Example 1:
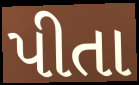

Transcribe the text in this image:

પીતા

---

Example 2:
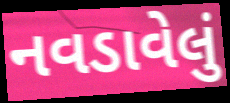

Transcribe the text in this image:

નવડાવેલું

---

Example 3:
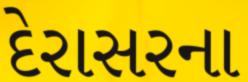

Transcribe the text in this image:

દેરાસરના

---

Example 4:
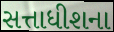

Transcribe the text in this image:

સત્તાધીશના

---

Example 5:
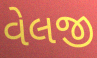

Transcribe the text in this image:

વેલજી